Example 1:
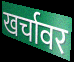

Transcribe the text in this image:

खर्चावर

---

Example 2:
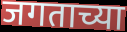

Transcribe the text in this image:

जगताच्या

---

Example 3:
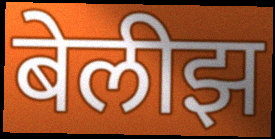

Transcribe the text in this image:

बेलीझ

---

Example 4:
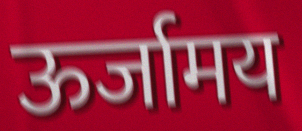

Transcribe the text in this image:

ऊर्जामय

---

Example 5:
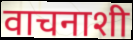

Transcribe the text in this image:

वाचनाशी